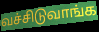
வச்சிடுவாங்க